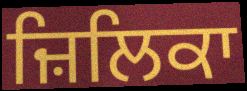
ਜ਼ਿਲਿਕਾ